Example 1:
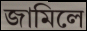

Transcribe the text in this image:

জামিলে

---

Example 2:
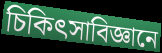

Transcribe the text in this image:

চিকিৎসাবিজ্ঞানে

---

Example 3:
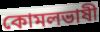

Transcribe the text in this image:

কোমলভাষী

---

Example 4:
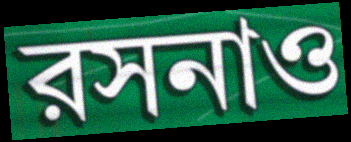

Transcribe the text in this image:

রসনাও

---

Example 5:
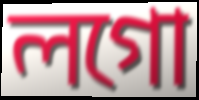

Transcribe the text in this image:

লগো